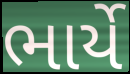
ભાર્યે